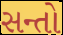
સન્તો